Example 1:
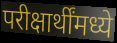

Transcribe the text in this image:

परीक्षार्थींमध्ये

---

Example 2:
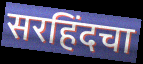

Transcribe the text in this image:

सरहिंदचा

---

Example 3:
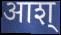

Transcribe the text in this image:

आश्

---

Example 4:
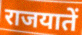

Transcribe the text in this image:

राजयातें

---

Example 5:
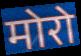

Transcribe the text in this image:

मोरो